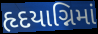
હૃદયાગ્નિમાં